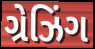
ગ્રેઝિંગ